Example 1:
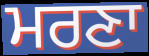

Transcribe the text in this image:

ਮਰਣਾ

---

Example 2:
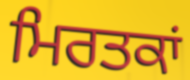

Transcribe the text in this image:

ਮਿਰਤਕਾਂ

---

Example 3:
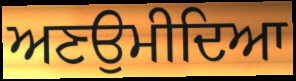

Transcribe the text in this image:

ਅਣਉਮੀਦਿਆ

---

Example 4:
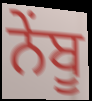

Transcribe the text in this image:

ਨੇਂਬੂ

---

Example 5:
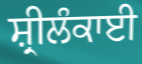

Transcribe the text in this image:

ਸ਼੍ਰੀਲੰਕਾਈ